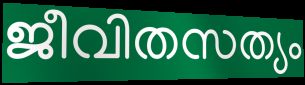
ജീവിതസത്യം